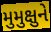
મુમુક્ષુને